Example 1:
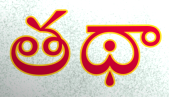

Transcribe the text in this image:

తథా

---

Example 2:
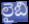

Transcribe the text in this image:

లైబి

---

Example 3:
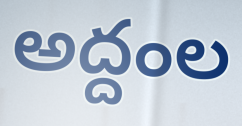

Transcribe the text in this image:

అద్దంల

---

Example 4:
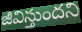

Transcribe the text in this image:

జీవిస్తుందని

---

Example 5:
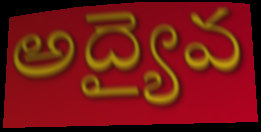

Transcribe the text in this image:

అద్యైవ